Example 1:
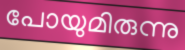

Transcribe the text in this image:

പോയുമിരുന്നു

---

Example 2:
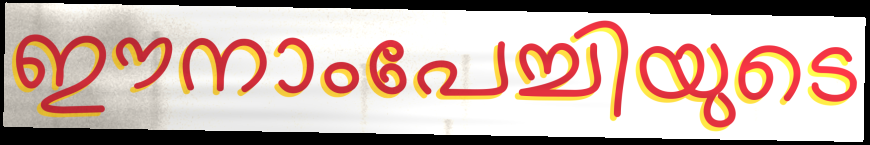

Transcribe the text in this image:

ഈനാംപേച്ചിയുടെ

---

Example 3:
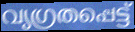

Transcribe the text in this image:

വ്യഗ്രതപ്പെട്ട്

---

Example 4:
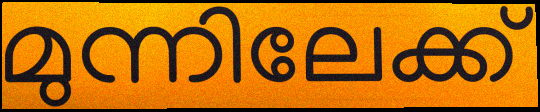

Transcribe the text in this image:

മുന്നിലേക്ക്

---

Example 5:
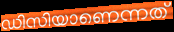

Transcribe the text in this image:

ഡിസിയാണെന്നത്